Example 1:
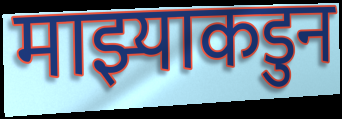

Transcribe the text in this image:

माझ्याकडुन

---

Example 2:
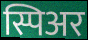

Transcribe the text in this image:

स्पिअर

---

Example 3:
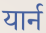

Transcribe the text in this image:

यार्न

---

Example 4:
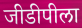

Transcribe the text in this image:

जीडीपीला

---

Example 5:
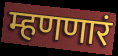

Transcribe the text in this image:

म्हणणारं